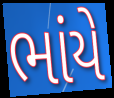
ભાંયે